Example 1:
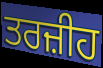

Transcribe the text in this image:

ਤਰਜ਼ੀਹ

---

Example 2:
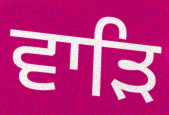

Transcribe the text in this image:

ਵਾੜਿ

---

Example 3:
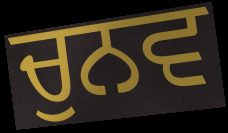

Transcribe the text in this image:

ਚੁਨਵ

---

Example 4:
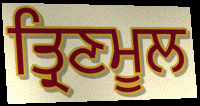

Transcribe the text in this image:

ਤ੍ਰਿਣਮੂਲ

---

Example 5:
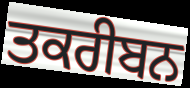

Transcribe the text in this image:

ਤਕਰੀਬਨ